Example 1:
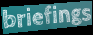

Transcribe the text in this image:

briefings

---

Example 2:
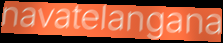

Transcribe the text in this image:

navatelangana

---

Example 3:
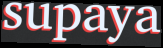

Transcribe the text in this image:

supaya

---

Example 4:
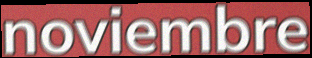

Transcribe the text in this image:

noviembre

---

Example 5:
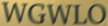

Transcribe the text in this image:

WGWLO